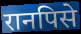
रानपिसे